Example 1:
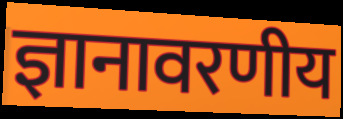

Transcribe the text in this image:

ज्ञानावरणीय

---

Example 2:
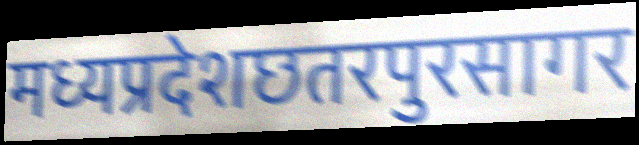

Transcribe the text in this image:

मध्यप्रदेशछतरपुरसागर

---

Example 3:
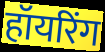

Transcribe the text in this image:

हॉयरिंग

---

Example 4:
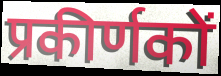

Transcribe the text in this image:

प्रकीर्णकों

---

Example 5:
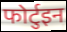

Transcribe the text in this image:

फोर्टुइन